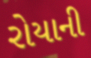
રોયાની